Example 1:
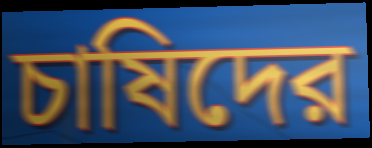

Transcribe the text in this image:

চাষিদের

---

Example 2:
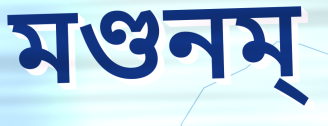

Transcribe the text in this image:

মণ্ডনম্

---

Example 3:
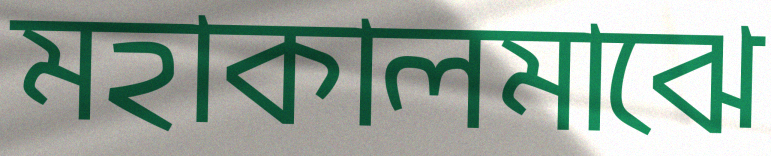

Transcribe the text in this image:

মহাকালমাঝে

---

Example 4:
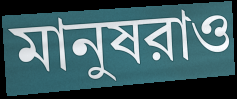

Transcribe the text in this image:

মানুষরাও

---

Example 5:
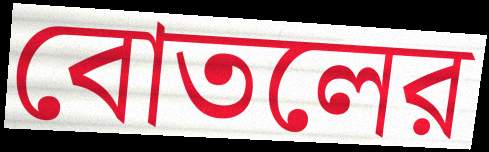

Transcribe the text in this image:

বোতলের